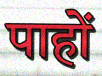
पाहों